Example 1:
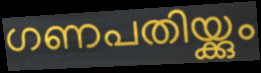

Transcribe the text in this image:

ഗണപതിയ്ക്കും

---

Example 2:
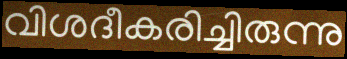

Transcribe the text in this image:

വിശദീകരിച്ചിരുന്നു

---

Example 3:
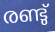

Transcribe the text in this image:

രണ്ടു്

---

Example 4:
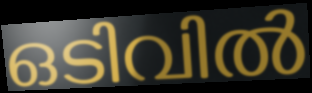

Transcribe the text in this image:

ഒടിവിൽ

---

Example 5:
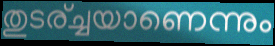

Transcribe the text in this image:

തുടര്ച്ചയാണെന്നും